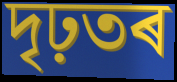
দৃঢ়তৰ